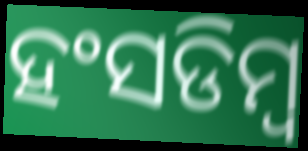
ହଂସଡିମ୍ବ